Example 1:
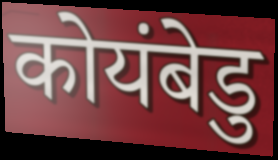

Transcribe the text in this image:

कोयंबेडु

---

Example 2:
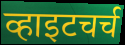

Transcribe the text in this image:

व्हाइटचर्च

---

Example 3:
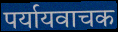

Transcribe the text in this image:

पर्यायवाचक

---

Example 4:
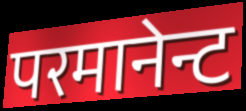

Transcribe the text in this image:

परमानेन्ट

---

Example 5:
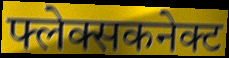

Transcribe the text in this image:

फ्लेक्सकनेक्ट